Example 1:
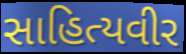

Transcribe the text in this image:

સાહિત્યવીર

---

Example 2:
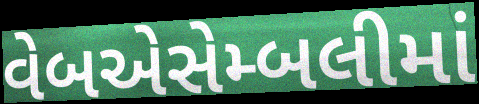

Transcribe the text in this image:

વેબએસેમ્બલીમાં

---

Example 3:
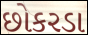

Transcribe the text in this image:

છોકરડા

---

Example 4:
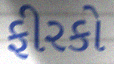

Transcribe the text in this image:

ફીરકો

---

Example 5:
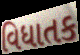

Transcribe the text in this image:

વિધાતક